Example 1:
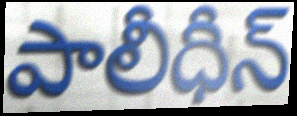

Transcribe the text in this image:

పాలీధీన్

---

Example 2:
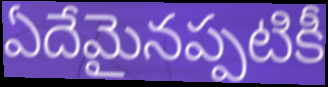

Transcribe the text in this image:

ఏదేమైనప్పటికీ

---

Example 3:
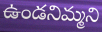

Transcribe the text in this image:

ఉండనిమ్మని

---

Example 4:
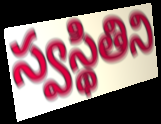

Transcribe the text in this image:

స్వస్థితిని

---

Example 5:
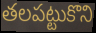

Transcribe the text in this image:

తలపట్టుకొని